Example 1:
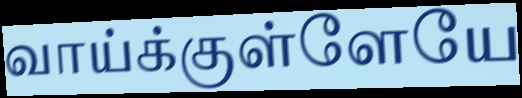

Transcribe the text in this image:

வாய்க்குள்ளேயே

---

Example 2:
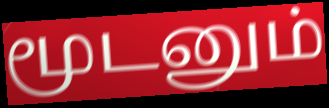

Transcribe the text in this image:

மூடனும்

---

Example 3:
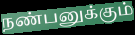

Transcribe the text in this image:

நண்பனுக்கும்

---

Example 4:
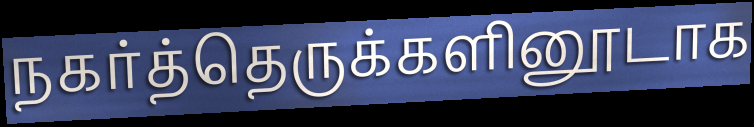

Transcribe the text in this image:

நகர்த்தெருக்களினூடாக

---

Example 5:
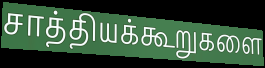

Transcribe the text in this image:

சாத்தியக்கூறுகளை